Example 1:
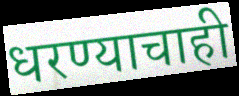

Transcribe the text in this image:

धरण्याचाही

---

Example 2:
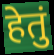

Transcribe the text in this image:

हेतुं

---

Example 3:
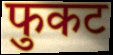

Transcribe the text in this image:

फुकट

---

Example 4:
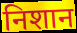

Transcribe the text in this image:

निशान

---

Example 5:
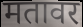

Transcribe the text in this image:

मतावर